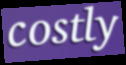
costly